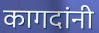
कागदांनी